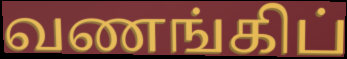
வணங்கிப்